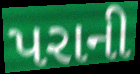
પરાની